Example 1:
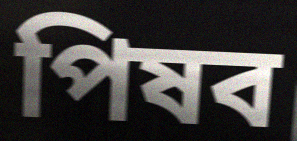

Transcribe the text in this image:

পিষব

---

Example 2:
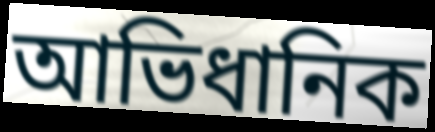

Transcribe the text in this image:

আভিধানিক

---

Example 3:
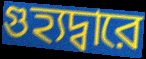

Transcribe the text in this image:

গুহ্যদ্বারে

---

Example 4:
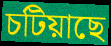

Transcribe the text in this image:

চটিয়াছে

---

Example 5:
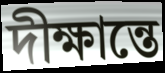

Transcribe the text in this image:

দীক্ষান্তে